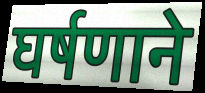
घर्षणाने